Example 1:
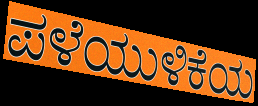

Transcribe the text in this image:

ಪಳೆಯುಳಿಕೆಯ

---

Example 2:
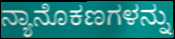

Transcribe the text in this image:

ನ್ಯಾನೊಕಣಗಳನ್ನು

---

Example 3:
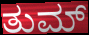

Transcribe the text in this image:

ತುಮ್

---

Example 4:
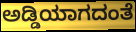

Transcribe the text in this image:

ಅಡ್ಡಿಯಾಗದಂತೆ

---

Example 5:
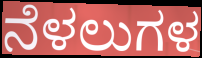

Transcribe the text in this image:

ನೆಳಲುಗಳ